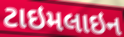
ટાઇમલાઇન